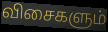
விசைகளும்